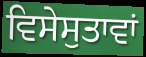
ਵਿਸੇਸੁਤਾਵਾਂ